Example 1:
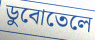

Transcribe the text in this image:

ডুবোতেলে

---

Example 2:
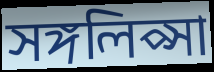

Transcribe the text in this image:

সঙ্গলিপ্সা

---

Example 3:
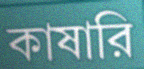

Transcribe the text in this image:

কাষারি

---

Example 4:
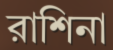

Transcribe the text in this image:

রাশিনা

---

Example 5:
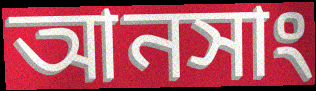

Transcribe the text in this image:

আনসাং